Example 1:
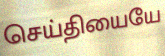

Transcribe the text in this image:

செய்தியையே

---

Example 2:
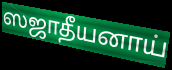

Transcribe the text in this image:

ஸஜாதீயனாய்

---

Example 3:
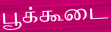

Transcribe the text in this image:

பூக்கூடை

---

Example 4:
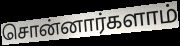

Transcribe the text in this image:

சொன்னார்களாம்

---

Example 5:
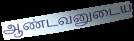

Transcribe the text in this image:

ஆண்டவனுடைய